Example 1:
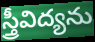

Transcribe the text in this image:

స్త్రీవిద్యను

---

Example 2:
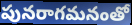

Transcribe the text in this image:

పునరాగమనంతో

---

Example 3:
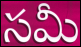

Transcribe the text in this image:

సమీ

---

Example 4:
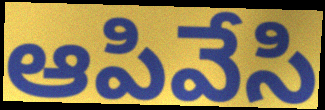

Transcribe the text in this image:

ఆపివేసి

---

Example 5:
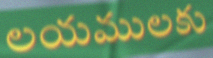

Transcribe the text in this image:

లయములకు